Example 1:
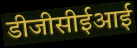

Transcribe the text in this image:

डीजीसीईआई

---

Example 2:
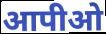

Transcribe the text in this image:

आपीओ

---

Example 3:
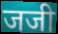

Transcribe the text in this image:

जजी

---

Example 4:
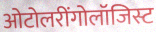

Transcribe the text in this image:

ओटोलरींगोलॉजिस्ट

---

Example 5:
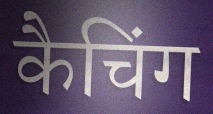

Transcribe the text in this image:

कैचिंग